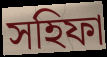
সহিফা